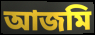
আজমি